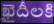
ఖైదీలకి